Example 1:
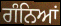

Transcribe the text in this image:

ਗੰਨਿਆਂ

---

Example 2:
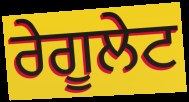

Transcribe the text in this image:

ਰੇਗੂਲੇਟ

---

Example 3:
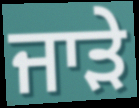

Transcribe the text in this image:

ਜਾੜੇ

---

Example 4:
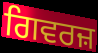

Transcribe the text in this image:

ਗਿਵਰਜ਼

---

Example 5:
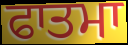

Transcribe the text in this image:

ਫਾਤਮਾ